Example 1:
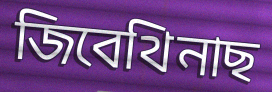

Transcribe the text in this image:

জিবেথিনাছ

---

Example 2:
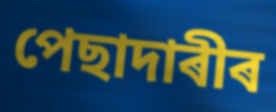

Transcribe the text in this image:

পেছাদাৰীৰ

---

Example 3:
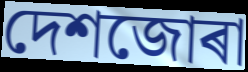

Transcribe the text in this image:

দেশজোৰা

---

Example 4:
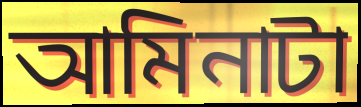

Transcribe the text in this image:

আমিনাটা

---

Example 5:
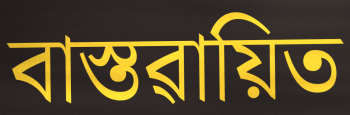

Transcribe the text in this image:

বাস্তৱায়িত